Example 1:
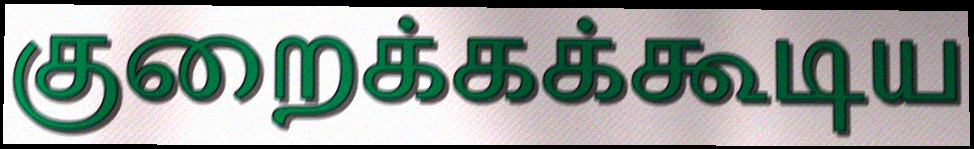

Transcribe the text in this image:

குறைக்கக்கூடிய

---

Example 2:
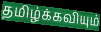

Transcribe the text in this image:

தமிழ்க்கவியும்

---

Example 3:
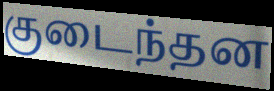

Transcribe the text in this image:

குடைந்தன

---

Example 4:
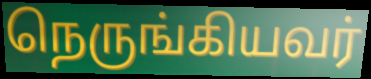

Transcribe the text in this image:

நெருங்கியவர்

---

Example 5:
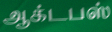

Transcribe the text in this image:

ஆக்டபஸ்